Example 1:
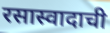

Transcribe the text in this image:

रसास्वादाची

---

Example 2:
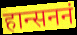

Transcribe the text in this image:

हान्सननं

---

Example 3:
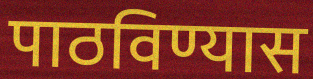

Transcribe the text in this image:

पाठविण्यास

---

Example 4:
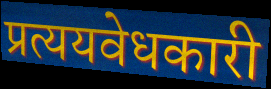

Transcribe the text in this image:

प्रत्ययवेधकारी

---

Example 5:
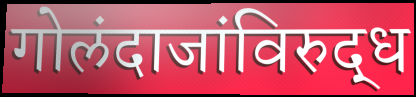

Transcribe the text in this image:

गोलंदाजांविरुद्ध